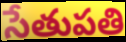
సేతుపతి